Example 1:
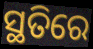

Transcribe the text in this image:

ସ୍ଥତିରେ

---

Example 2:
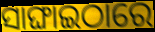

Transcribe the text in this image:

ସାଙ୍ଘାଇଠାରେ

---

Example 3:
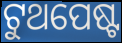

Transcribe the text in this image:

ଟୁଥପେଷ୍ଟ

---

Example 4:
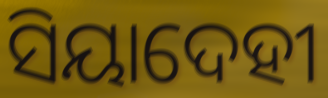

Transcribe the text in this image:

ସିୟାଦେହୀ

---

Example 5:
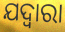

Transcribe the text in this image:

ଯଦ୍ୱାରା